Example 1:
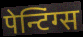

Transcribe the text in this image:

पेन्टिंग्स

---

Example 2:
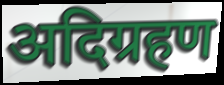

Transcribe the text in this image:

अदिग्रहण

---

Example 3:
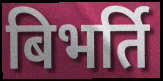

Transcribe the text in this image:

बिभर्ति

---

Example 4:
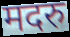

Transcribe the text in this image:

मदरु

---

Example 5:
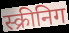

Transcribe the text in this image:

स्क्रीनिग